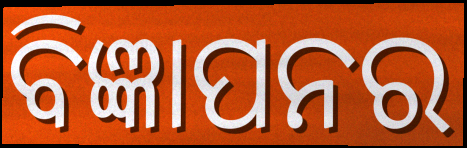
ବିଜ୍ଞାପନର